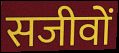
सजीवों